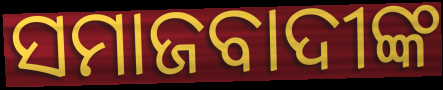
ସମାଜବାଦୀଙ୍କ